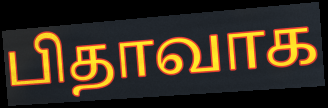
பிதாவாக